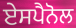
ਏਸਪੈਨੋਲ